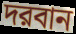
দরবান